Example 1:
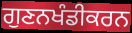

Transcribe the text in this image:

ਗੁਣਨਖੰਡੀਕਰਨ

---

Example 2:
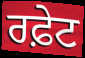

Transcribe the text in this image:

ਰਫ਼ੇਟ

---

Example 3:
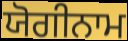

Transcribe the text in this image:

ਯੋਗੀਨਾਮ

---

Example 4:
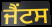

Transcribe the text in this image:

ਜੈਂਟਸ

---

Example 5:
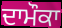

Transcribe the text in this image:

ਦਾਮੌਕਾ